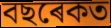
বছৰেকত